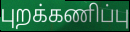
புறக்கணிப்பு